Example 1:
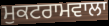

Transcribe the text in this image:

ਮੁਕਟਰਾਮਵਾਲਾ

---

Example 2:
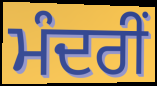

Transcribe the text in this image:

ਮੰਦਰੀਂ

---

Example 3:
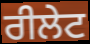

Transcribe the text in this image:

ਰੀਲੇਟ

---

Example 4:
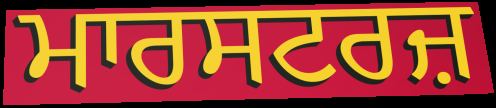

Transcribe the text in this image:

ਮਾਰਸਟਰਜ਼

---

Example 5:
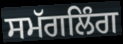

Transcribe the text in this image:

ਸਮੱਗਲਿੰਗ